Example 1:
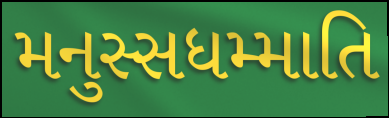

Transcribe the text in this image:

મનુસ્સધમ્માતિ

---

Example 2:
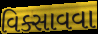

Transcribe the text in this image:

વિક્સાવવા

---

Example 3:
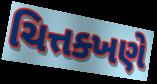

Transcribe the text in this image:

ચિત્તક્ખણે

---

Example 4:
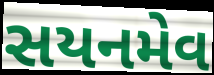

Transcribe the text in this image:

સયનમેવ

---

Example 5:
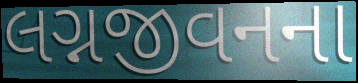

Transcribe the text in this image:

લગ્નજીવનના